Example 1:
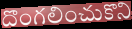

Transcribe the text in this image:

దొంగలించుకొని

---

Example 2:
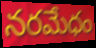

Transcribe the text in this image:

నరమేధం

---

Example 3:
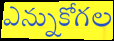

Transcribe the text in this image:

ఎన్నుకోగల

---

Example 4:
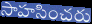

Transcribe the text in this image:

సాహసించరు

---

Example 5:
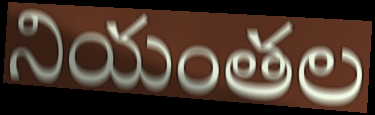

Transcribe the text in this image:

నియంతల